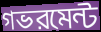
গভরমেন্ট